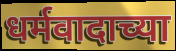
धर्मवादाच्या